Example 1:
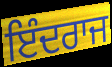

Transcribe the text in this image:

ਇੰਦਰਾਜ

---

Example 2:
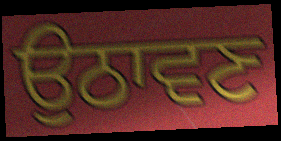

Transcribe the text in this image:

ਉਠਾਵਣ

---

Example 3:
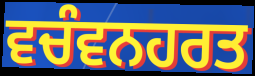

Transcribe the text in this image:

ਵਚੰਵਨਹਰਤ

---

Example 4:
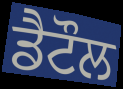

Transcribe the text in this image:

ਡੈਟੌਲ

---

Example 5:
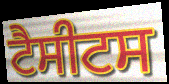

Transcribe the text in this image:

ਟੈਸੀਟਸ